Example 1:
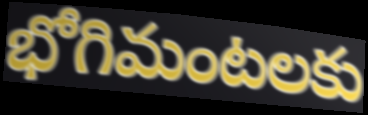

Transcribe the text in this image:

భోగిమంటలకు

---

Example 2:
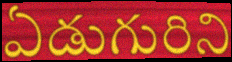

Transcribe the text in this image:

ఏడుగురిని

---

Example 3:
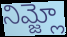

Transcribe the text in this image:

నిమ్జ్లో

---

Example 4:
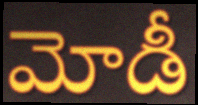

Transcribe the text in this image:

మోడీ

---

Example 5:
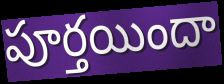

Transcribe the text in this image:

పూర్తయిందా